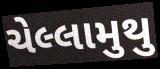
ચેલ્લામુથુ